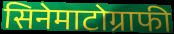
सिनेमाटोग्राफी